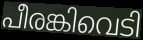
പീരങ്കിവെടി